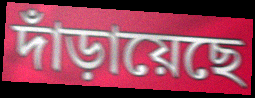
দাঁড়ায়েছে